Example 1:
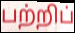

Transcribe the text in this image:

பற்றிப்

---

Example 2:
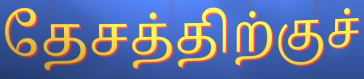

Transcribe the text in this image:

தேசத்திற்குச்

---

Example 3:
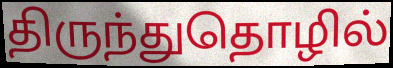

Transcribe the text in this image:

திருந்துதொழில்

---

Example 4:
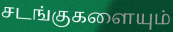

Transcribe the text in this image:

சடங்குகளையும்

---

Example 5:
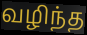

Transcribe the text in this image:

வழிந்த